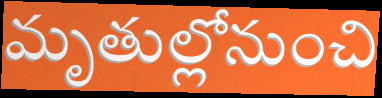
మృతుల్లోనుంచి